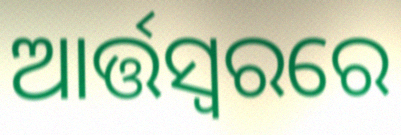
ଆର୍ତ୍ତସ୍ଵରରେ